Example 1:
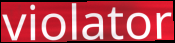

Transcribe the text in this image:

violator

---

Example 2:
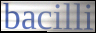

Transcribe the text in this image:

bacilli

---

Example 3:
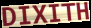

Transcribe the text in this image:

DIXITH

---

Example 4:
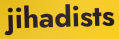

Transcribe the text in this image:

jihadists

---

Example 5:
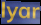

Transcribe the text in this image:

Iyar